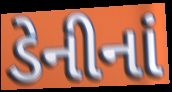
ડેનીનાં